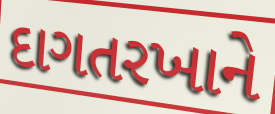
દાગતરખાને